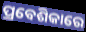
ପ୍ରବେଶିକାରେ